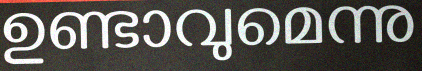
ഉണ്ടാവുമെന്നു